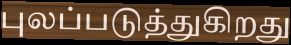
புலப்படுத்துகிறது